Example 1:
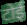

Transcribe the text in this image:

टोई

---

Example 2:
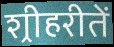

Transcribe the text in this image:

श्रीहरीतें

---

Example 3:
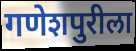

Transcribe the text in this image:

गणेशपुरीला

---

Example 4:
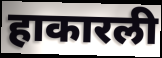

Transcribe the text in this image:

हाकारली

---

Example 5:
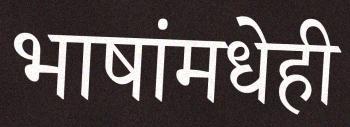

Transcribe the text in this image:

भाषांमधेही